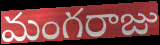
మంగరాజు